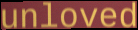
unloved